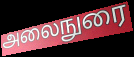
அலைநுரை